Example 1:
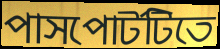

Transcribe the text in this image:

পাসপোর্টটিতে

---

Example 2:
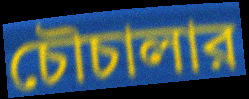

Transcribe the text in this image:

চৌচালার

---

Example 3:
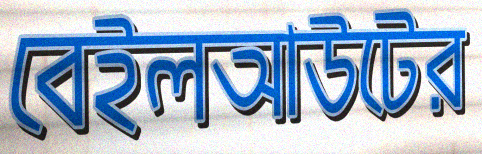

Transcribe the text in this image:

বেইলআউটের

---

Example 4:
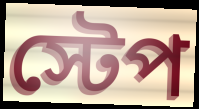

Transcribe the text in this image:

স্টেপ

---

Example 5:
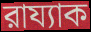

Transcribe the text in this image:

রায্যাক